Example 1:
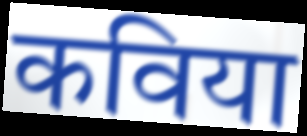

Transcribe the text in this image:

कविया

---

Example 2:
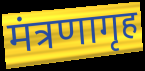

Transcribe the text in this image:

मंत्रणागृह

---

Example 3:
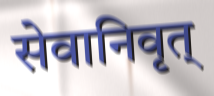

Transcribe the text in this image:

सेवानिवृत्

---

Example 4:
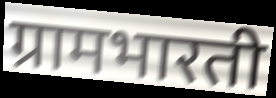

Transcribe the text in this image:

ग्रामभारती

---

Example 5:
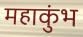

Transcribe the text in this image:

महाकुंभ